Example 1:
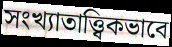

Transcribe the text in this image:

সংখ্যাতাত্ত্বিকভাবে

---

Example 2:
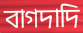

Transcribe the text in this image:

বাগদাদি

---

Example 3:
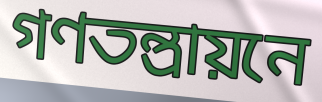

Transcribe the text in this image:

গণতন্ত্রায়নে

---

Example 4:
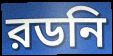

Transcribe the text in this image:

রডনি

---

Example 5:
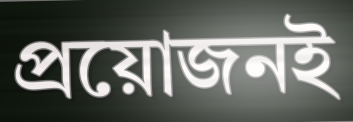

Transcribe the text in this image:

প্রয়োজনই